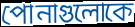
পোনাগুলোকে